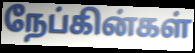
நேப்கின்கள்